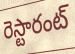
రెస్టారంట్